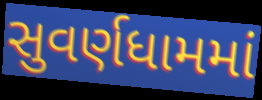
સુવર્ણધામમાં